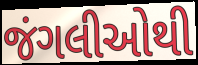
જંગલીઓથી